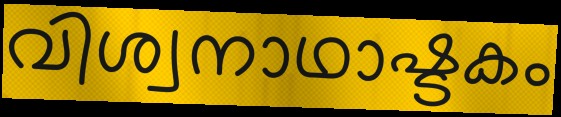
വിശ്വനാഥാഷ്ടകം